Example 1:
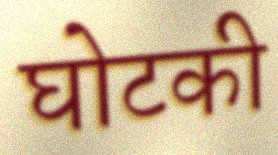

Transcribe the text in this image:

घोटकी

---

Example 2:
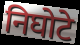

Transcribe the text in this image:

निघोटे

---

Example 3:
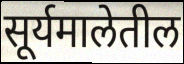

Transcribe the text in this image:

सूर्यमालेतील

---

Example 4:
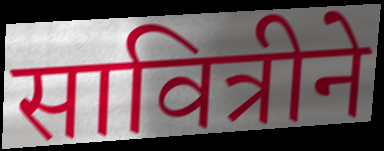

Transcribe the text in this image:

सावित्रीने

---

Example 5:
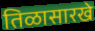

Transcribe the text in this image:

तिळासारखे